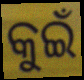
କୁଇଁ